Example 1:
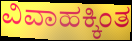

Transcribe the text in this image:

ವಿವಾಹಕ್ಕಿಂತ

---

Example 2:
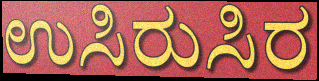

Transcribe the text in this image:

ಉಸಿರುಸಿರ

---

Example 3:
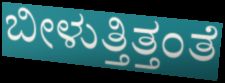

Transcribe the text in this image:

ಬೀಳುತ್ತಿತ್ತಂತೆ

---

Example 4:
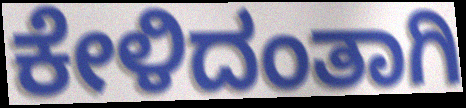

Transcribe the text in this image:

ಕೇಳಿದಂತಾಗಿ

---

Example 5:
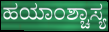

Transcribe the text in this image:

ಹಯಾಂಶ್ಚಾಸ್ಯ